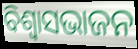
ବିଶ୍ଵାସଭାଜନ